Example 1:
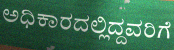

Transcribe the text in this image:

ಅಧಿಕಾರದಲ್ಲಿದ್ದವರಿಗೆ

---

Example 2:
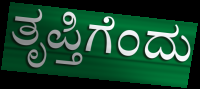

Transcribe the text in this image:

ತೃಪ್ತಿಗೆಂದು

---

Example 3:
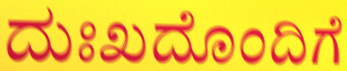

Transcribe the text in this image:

ದುಃಖದೊಂದಿಗೆ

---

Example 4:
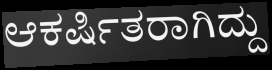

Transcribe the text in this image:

ಆಕರ್ಷಿತರಾಗಿದ್ದು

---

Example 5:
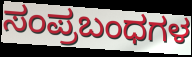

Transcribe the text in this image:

ಸಂಪ್ರಬಂಧಗಳ